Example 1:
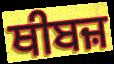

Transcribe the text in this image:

ਥੀਬਜ਼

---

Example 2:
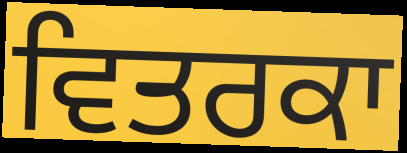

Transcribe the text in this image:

ਵਿਤਰਕਾ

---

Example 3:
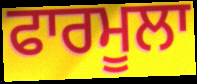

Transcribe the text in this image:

ਫਾਰਮੂਲਾ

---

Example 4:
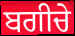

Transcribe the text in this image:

ਬਗੀਚੇ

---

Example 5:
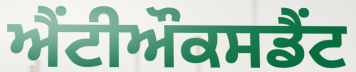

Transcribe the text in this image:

ਐਂਟੀਔਕਸਡੈਂਟ